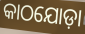
କାଠଯୋଡ଼ା